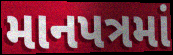
માનપત્રમાં